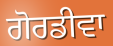
ਗੋਰਡੀਵਾ